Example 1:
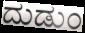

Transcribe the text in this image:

ದುಡುಂ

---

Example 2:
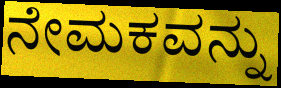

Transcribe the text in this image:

ನೇಮಕವನ್ನು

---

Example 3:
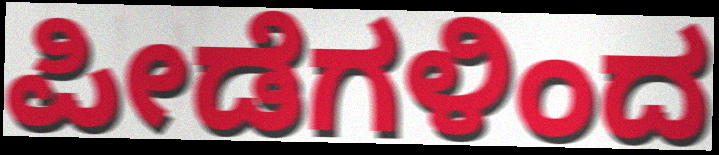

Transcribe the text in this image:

ಪೀಡೆಗಳಿಂದ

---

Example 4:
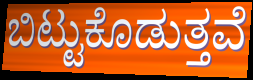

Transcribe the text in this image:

ಬಿಟ್ಟುಕೊಡುತ್ತವೆ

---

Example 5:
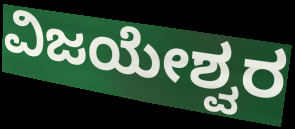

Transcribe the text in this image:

ವಿಜಯೇಶ್ವರ